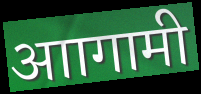
आागामी